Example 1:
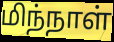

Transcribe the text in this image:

மிந்நாள்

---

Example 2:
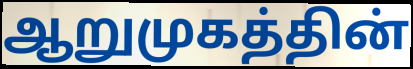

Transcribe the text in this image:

ஆறுமுகத்தின்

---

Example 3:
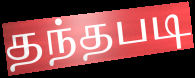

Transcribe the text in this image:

தந்தபடி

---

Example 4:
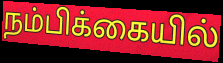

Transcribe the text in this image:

நம்பிக்கையில்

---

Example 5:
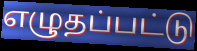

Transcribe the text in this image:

எழுதப்பட்டு